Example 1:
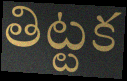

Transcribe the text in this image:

తిట్టక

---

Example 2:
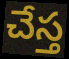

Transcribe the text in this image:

చేస్త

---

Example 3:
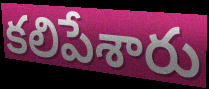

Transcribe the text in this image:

కలిపేశారు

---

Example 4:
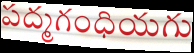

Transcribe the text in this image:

పద్మగంధియగు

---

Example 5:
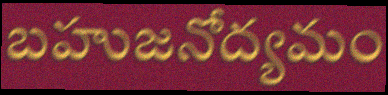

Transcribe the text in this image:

బహుజనోద్యమం